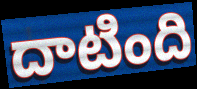
దాటింది